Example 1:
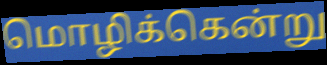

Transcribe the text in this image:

மொழிக்கென்று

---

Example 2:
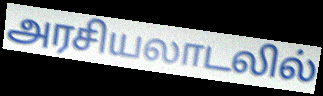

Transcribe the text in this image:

அரசியலாடலில்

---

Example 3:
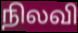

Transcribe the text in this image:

நிலவி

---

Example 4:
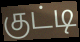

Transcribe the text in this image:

குட்டி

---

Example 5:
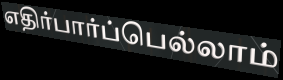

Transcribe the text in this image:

எதிர்பார்ப்பெல்லாம்